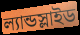
ল্যান্ডস্লাইড